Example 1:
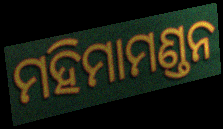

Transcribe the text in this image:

ମହିମାମଣ୍ଡନ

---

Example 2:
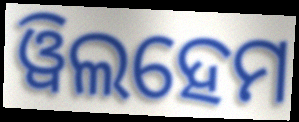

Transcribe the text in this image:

ୱିଲହେମ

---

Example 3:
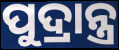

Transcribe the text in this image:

ପୁଦ୍ରାନ୍ତ୍ର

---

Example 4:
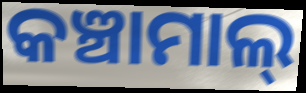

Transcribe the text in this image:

କଞ୍ଚାମାଲ୍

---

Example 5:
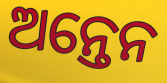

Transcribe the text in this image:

ଅନ୍ତେନ